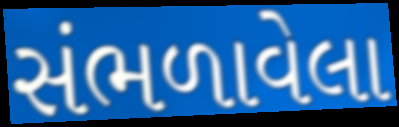
સંભળાવેલા